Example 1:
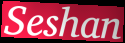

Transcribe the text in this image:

Seshan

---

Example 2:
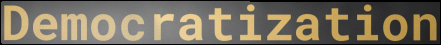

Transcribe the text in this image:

Democratization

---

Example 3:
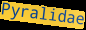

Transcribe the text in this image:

Pyralidae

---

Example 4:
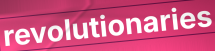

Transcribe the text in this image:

revolutionaries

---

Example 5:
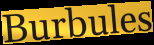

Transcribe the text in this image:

Burbules